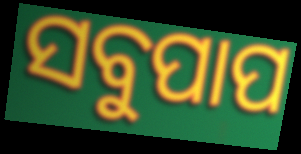
ସବୁପାପ